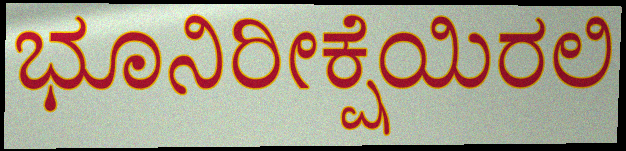
ಭೂನಿರೀಕ್ಷೆಯಿರಲಿ